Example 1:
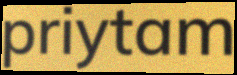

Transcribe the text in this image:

priytam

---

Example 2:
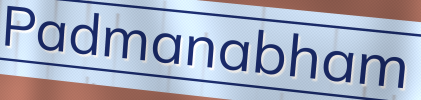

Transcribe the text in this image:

Padmanabham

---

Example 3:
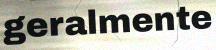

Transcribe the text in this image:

geralmente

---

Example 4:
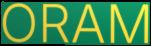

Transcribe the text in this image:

ORAM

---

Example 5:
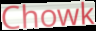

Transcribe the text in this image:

Chowk